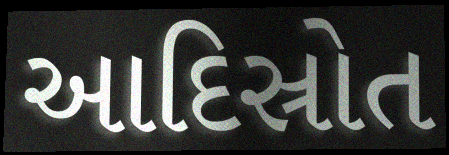
આદિસ્રોત